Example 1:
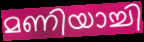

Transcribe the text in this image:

മണിയാച്ചി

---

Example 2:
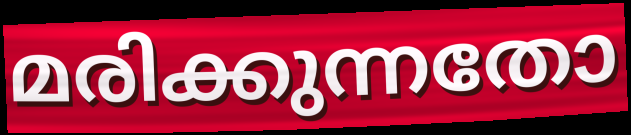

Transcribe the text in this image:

മരിക്കുന്നതോ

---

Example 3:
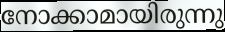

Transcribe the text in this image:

നോക്കാമായിരുന്നു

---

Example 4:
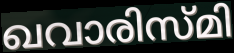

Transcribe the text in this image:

ഖവാരിസ്മി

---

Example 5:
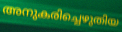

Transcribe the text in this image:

അനുകരിച്ചെഴുതിയ